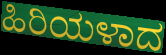
ಹಿರಿಯಳಾದ